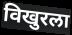
विखुरला